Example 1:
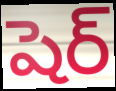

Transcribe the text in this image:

షెర్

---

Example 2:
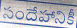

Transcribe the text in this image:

సందేహానికీ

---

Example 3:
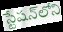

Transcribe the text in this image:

స్టేషన్‌లోని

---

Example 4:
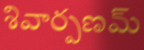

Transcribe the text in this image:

శివార్పణమ్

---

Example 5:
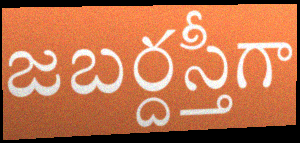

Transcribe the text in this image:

జబర్దస్తీగా